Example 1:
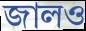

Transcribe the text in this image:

জালও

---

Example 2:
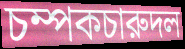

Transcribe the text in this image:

চম্পকচারুদল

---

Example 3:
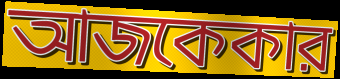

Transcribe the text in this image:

আজকেকার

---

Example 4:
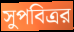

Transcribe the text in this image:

সুপবিত্রর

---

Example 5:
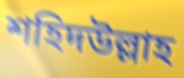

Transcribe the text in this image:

শহিদউল্লাহ